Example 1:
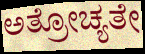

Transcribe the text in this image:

ಅತ್ರೋಚ್ಯತೇ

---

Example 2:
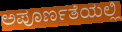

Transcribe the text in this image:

ಅಪೂರ್ಣತೆಯಲ್ಲಿ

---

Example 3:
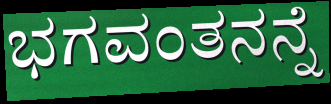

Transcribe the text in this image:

ಭಗವಂತನನ್ನೆ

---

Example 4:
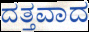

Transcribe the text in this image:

ದತ್ತವಾದ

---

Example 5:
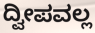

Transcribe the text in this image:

ದ್ವೀಪವಲ್ಲ